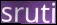
sruti